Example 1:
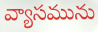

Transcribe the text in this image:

వ్యాసమును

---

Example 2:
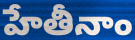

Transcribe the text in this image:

హేతీనాం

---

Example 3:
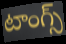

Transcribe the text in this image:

టాంగ్స్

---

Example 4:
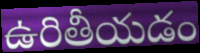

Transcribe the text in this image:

ఉరితీయడం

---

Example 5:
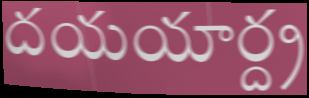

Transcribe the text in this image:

దయయార్ద్ర